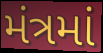
મંત્રમાં